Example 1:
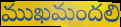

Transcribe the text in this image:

ముఖమందలి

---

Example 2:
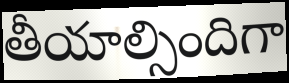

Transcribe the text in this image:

తీయాల్సిందిగా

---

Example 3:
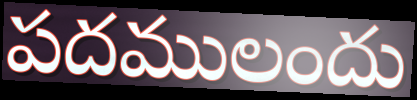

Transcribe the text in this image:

పదములందు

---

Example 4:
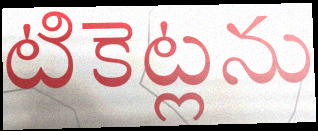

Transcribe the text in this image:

టికెట్లను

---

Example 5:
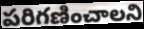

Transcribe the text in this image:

పరిగణించాలని